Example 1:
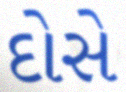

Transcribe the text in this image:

દોસે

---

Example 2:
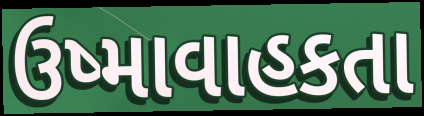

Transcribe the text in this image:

ઉષ્માવાહકતા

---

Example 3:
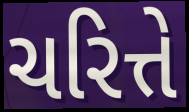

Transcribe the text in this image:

ચરિત્તે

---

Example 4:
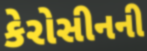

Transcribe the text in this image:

કેરોસીનની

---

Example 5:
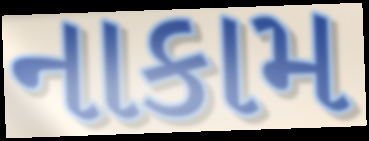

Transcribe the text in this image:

નાકામ